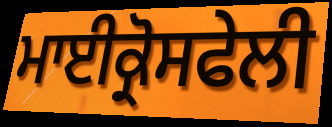
ਮਾਈਕ੍ਰੋਸਫੇਲੀ